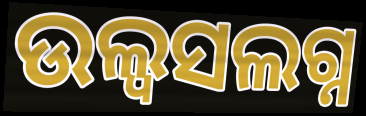
ଉଲ୍ୱସଲଗ୍ନ